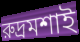
রুদ্রমশাই